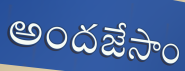
అందజేసాం